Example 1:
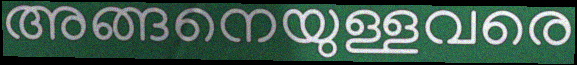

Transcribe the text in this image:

അങ്ങനെയുള്ളവരെ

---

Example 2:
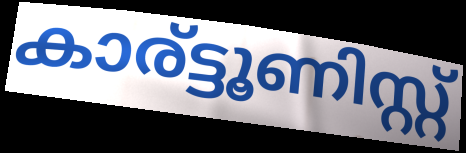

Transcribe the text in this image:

കാര്ട്ടൂണിസ്റ്റ്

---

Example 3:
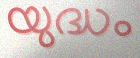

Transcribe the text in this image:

യുദ്ധം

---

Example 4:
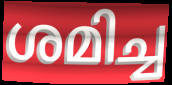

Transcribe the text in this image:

ശമിച്ച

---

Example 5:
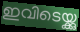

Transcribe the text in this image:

ഇവിടെയ്ക്കു